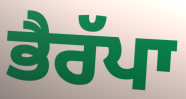
ਭੈਰੱਪਾ